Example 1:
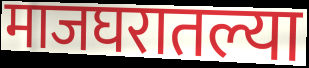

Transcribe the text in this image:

माजघरातल्या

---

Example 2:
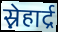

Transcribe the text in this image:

स्नेहार्द्र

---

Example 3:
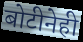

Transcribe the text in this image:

बोटीनेही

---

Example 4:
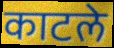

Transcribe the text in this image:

काटले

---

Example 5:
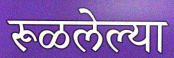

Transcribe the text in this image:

रूळलेल्या